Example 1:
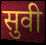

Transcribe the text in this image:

सुवी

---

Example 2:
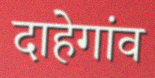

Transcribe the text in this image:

दाहेगांव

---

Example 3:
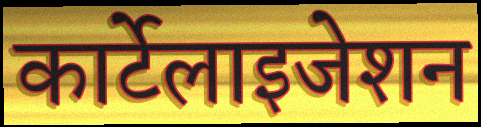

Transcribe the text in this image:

कार्टेलाइजेशन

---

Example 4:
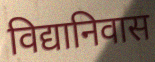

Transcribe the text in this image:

विद्यानिवास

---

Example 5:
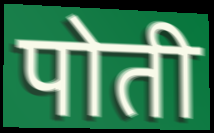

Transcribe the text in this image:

पोती